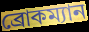
ব্রোকম্যান